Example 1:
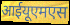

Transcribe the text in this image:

आईयूएमएस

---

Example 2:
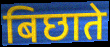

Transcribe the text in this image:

बिछाते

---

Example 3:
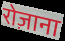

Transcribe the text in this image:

रोज़ाना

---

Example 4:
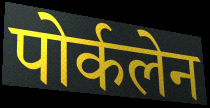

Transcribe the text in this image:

पोर्कलेन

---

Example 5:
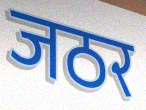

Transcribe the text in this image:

जठर